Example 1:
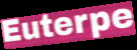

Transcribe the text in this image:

Euterpe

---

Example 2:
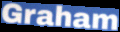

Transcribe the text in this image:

Graham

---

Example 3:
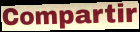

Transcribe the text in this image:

Compartir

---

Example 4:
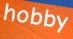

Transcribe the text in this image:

hobby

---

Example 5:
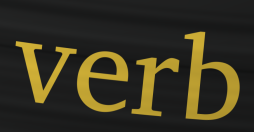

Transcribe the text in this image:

verb